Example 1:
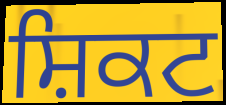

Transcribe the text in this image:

ਸ਼ਿਕਟ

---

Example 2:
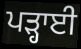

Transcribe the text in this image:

ਪੜ੍ਹਾਈ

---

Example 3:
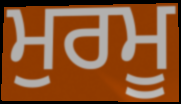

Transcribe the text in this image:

ਮੁਰਮੂ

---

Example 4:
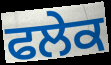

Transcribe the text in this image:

ਫਲੇਕ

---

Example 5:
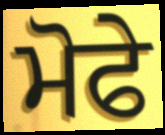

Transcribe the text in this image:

ਮੋਫੇ